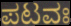
ಪಟವಃ